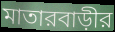
মাতারবাড়ীর